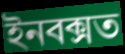
ইনবক্সত